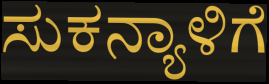
ಸುಕನ್ಯಾಳಿಗೆ